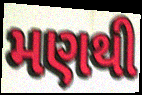
મણથી